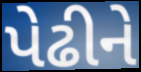
પેઢીને